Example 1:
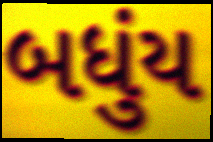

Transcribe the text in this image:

બધુંય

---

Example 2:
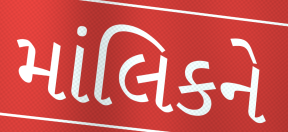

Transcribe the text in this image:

માંલિકને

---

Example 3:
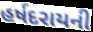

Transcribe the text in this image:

હર્ષદરાયની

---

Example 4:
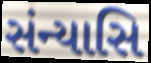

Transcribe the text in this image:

સંન્યાસિ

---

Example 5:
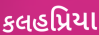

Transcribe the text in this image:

કલહપ્રિયા